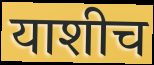
याशीच